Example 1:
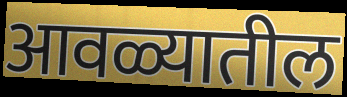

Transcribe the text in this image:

आवळ्यातील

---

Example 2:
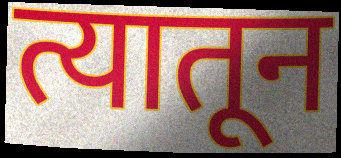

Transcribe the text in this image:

त्यातून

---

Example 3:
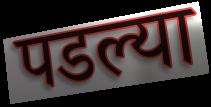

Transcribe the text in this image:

पडल्या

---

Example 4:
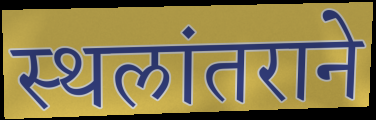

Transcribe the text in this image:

स्थलांतराने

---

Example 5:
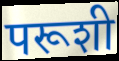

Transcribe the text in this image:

परूशी